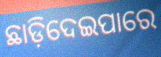
ଛାଡ଼ିଦେଇପାରେ